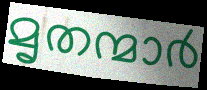
മൃതന്മാർ